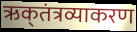
ऋक्‌तंत्रव्याकरण